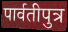
पार्वतीपुत्र